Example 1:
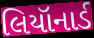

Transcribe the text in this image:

લિયૉનાર્ડ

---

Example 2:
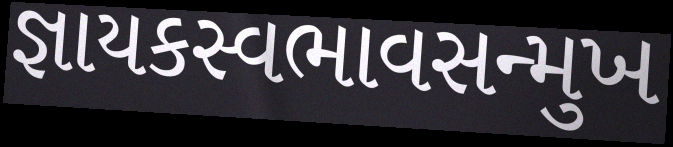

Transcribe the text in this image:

જ્ઞાયકસ્વભાવસન્મુખ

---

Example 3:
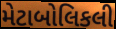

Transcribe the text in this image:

મેટાબોલિકલી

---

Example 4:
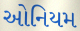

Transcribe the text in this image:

ઓનિયમ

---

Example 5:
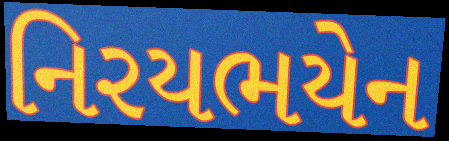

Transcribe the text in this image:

નિરયભયેન